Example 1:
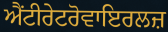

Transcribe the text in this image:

ਐਂਟੀਰੇਟਰੋਵਾਇਰਲਜ਼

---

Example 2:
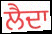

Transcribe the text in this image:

ਲੈਦਾ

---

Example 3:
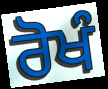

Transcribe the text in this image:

ਰੋਖੰ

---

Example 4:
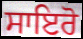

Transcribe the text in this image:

ਸਾਇਰੋ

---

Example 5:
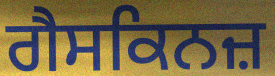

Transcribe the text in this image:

ਗੈਸਕਿਨਜ਼